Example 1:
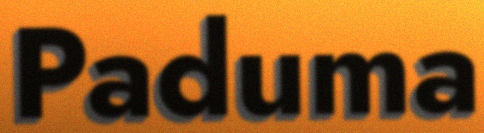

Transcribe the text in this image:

Paduma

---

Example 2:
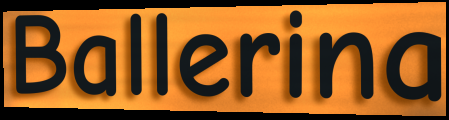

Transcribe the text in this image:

Ballerina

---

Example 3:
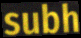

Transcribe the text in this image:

subh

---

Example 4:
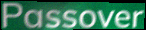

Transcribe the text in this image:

Passover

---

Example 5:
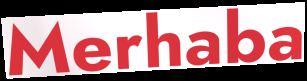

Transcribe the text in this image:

Merhaba